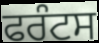
ਫਰੰਟਸ